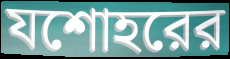
যশোহরের